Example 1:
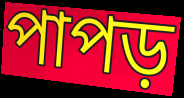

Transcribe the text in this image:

পাপড়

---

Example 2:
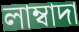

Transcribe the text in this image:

লাম্বাদা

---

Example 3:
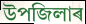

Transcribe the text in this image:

উপজিলাৰ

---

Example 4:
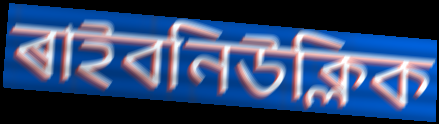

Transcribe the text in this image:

ৰাইবনিউক্লিক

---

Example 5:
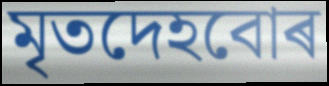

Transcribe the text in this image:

মৃতদেহবোৰ